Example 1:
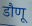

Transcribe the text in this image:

डौणू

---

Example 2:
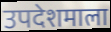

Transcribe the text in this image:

उपदेशमाला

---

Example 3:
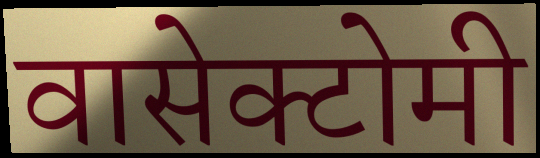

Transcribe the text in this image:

वासेक्टोमी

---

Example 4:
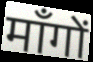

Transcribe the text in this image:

माँगों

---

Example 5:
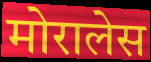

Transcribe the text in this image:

मोरालेस